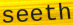
seeth